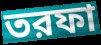
তরফা